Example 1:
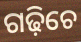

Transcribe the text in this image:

ଗଢ଼ିଚେ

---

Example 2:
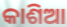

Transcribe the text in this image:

କାଶିଆ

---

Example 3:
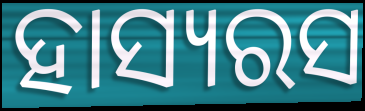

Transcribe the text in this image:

ହାସ୍ୟରସ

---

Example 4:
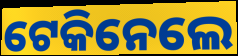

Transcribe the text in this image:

ଟେକିନେଲେ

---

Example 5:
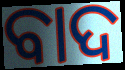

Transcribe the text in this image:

ବାଦ